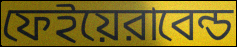
ফেইয়েরাবেন্ড